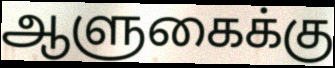
ஆளுகைக்கு